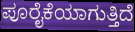
ಪೂರೈಕೆಯಾಗುತ್ತಿದೆ